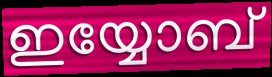
ഇയ്യോബ്